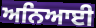
ਅਨਿਆਈ